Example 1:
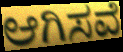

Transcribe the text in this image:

ಆಗಿಸವೆ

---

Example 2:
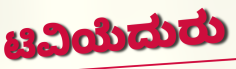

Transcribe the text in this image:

ಟಿವಿಯೆದುರು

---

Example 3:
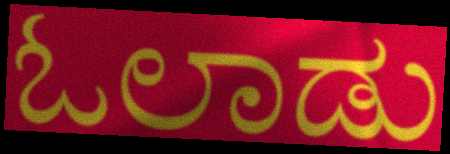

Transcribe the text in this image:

ಓಲಾಡು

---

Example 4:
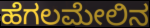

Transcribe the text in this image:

ಹೆಗಲಮೇಲಿನ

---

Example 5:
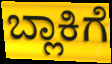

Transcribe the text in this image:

ಬ್ಲಾಕಿಗೆ